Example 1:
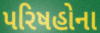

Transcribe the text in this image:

પરિષહોના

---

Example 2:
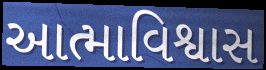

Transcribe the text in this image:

આત્માવિશ્વાસ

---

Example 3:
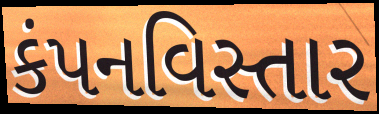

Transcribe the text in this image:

કંપનવિસ્તાર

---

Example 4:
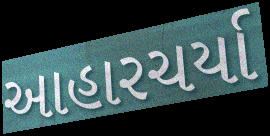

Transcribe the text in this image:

આહારચર્યા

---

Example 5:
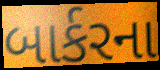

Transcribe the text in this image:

બાર્કરના